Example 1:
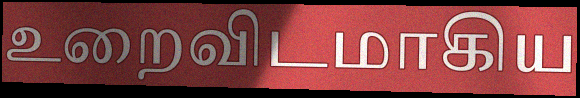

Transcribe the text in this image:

உறைவிடமாகிய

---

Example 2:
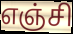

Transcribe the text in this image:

எஞ்சி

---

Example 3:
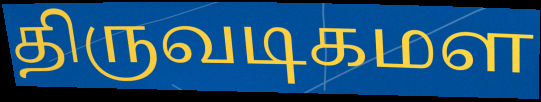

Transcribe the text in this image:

திருவடிகமள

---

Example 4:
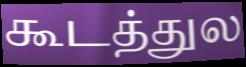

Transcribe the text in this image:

கூடத்துல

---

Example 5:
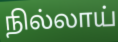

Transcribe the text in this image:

நில்லாய்